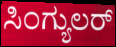
ಸಿಂಗ್ಯುಲರ್